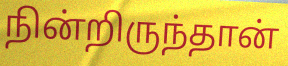
நின்றிருந்தான்